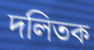
দলিতক